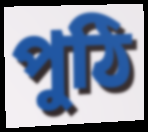
পুঠি